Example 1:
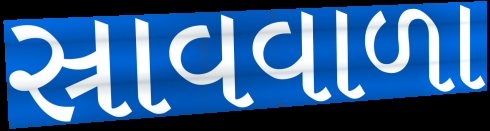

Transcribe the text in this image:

સ્રાવવાળા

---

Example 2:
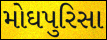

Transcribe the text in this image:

મોઘપુરિસા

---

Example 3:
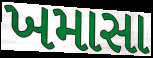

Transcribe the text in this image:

ખમાસા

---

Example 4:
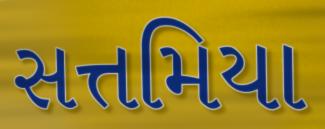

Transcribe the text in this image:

સત્તમિયા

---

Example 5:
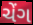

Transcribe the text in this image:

ચેંગ